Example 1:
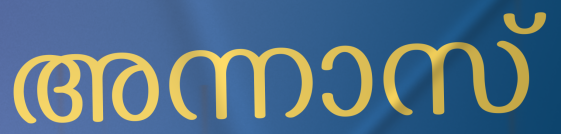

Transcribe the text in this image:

അന്നാസ്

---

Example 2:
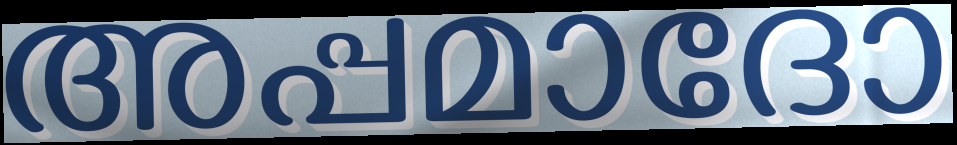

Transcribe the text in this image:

അപ്പമാദോ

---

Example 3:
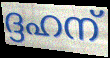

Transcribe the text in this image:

ദ്ദഹന്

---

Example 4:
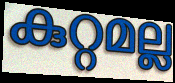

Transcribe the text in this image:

കുറ്റമല്ല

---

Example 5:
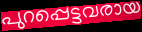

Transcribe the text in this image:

പുറപ്പെട്ടവരായ